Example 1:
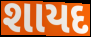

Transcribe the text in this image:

શાયદ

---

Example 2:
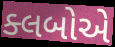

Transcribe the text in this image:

ક્લબોએ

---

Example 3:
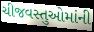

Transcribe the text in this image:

ચીજવસ્તુઓમાંની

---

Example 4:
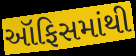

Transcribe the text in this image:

ઑફિસમાંથી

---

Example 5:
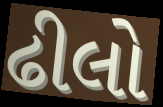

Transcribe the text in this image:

ઢીલો